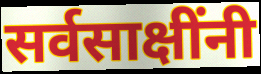
सर्वसाक्षींनी